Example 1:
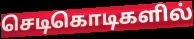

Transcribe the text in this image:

செடிகொடிகளில்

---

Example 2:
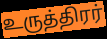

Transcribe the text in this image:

உருத்திரர்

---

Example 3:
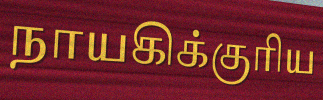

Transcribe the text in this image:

நாயகிக்குரிய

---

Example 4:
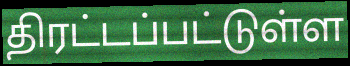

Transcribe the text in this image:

திரட்டப்பட்டுள்ள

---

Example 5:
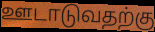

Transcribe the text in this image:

ஊடாடுவதற்கு